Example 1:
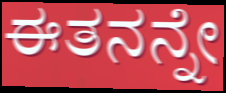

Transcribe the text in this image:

ಈತನನ್ನೇ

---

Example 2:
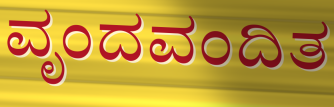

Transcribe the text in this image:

ವೃಂದವಂದಿತ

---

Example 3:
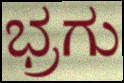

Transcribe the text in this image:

ಭ್ರಗು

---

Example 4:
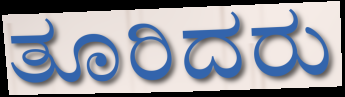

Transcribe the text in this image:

ತೂರಿದರು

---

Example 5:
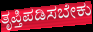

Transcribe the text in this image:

ತೃಪ್ತಿಪಡಿಸಬೇಕು